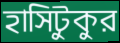
হাসিটুকুর